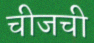
चीजची